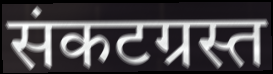
संकटग्रस्त